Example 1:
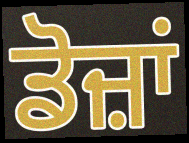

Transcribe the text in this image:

ਡੋਜ਼ਾਂ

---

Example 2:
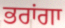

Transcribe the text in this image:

ਭਰਾਂਗਾ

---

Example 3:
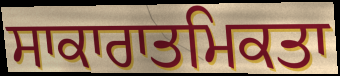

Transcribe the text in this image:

ਸਾਕਾਰਾਤਮਿਕਤਾ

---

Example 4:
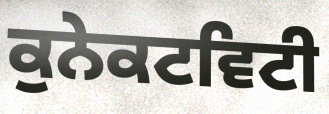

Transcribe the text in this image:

ਕੁਨੇਕਟਵਿਟੀ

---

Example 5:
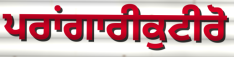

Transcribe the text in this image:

ਪਰਾਂਗਾਰੀਕੁਟੀਰੋ